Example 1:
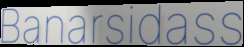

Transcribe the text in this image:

Banarsidass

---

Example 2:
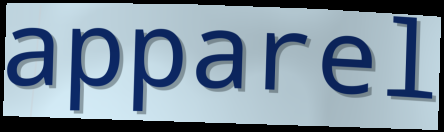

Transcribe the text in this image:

apparel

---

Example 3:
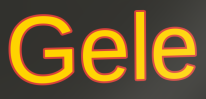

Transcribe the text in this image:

Gele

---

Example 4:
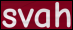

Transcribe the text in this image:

svah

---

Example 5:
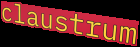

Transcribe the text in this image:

claustrum